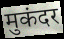
मुकंदर